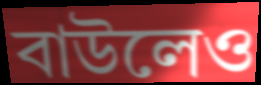
বাউলেও